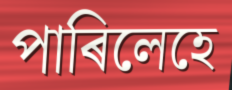
পাৰিলেহে